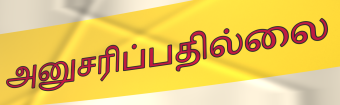
அனுசரிப்பதில்லை